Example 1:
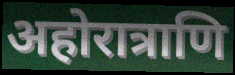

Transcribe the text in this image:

अहोरात्राणि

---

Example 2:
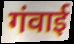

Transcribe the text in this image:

गंवाई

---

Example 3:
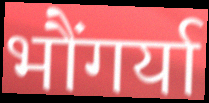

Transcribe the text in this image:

भौंगर्या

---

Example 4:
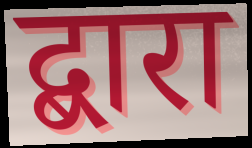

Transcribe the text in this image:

द्बारा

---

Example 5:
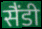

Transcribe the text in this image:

सैंडी